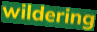
wildering